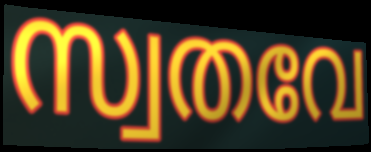
സ്വതവേ